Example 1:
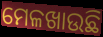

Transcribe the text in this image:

ମେଳଖାଉଛି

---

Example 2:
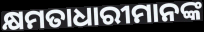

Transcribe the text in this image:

କ୍ଷମତାଧାରୀମାନଙ୍କ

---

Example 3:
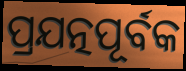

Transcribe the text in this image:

ପ୍ରଯତ୍ନପୂର୍ବକ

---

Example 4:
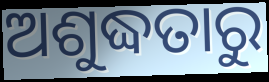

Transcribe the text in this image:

ଅଶୁଦ୍ଧତାରୁ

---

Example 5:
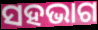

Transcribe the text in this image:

ସହଭାଗ